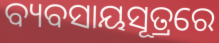
ବ୍ୟବସାୟସୂତ୍ରରେ